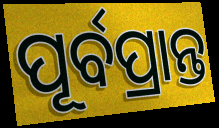
ପୂର୍ବପ୍ରାନ୍ତ